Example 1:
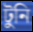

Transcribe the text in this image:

টুনি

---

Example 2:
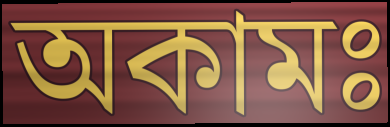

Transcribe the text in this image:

অকামঃ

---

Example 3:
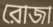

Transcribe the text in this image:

রোজা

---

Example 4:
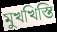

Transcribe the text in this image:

মুখখিস্তি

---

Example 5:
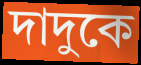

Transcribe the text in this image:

দাদুকে